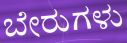
ಬೇರುಗಳು